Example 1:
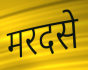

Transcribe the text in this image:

मरदसे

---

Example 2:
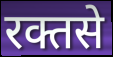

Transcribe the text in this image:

रक्तसे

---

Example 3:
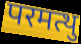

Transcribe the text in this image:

परमत्थु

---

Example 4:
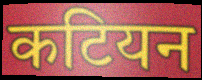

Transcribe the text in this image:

कटियन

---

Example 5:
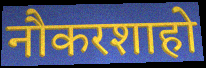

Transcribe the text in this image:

नौकरशाहो